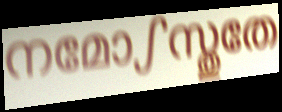
നമോഽസ്തുതേ